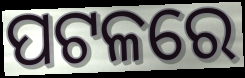
ପଟଳରେ